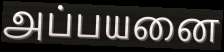
அப்பயனை